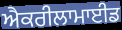
ਐਕਰੀਲਾਮਾਈਡ